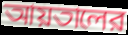
আয়তালের